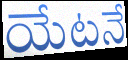
యేటనే